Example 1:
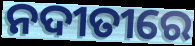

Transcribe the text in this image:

ନଦୀତୀରେ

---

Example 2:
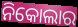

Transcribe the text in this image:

ନିକୋଲାର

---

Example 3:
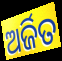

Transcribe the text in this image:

ଅର୍ଜିତ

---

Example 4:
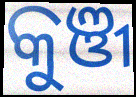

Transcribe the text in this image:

କୁଞ୍ଜ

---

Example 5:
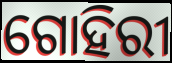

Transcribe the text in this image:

ଗୋହିରୀ